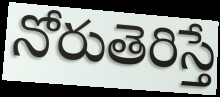
నోరుతెరిస్తే